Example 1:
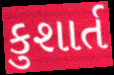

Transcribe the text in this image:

કુશાર્ત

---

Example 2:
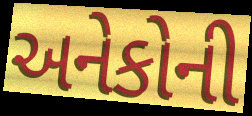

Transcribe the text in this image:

અનેકોની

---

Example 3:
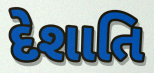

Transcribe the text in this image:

દેશાતિ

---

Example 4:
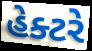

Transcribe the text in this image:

હેક્ટરે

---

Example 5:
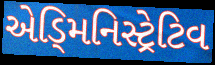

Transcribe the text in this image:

એડ્મિનિસ્ટ્રેટિવ